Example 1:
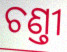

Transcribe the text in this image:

ଚଣ୍ତୀ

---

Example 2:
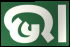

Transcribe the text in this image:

ଭା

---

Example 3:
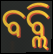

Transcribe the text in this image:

ବବ୍ଲି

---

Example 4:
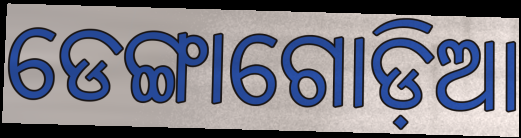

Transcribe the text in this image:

ଡେଙ୍ଗାଗୋଡ଼ିଆ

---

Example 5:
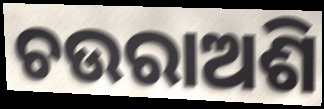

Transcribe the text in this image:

ଚଉରାଅଶି